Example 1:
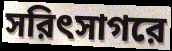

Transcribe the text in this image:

সরিৎসাগরে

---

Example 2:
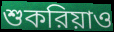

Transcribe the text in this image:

শুকরিয়াও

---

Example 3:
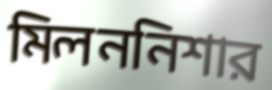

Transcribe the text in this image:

মিলননিশার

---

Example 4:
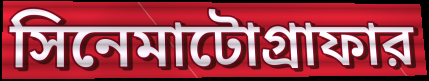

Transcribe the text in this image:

সিনেমাটোগ্রাফার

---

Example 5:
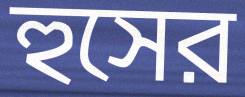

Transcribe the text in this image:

হুসের